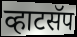
व्हाटसॅप